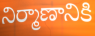
నిర్మాణానికి